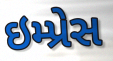
ઇમ્પ્રેસ